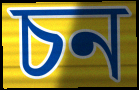
চন